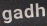
gadh